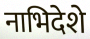
नाभिदेशे